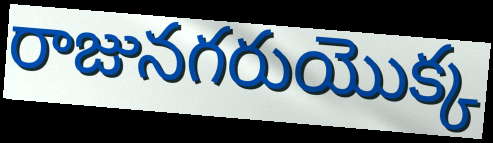
రాజునగరుయొక్క